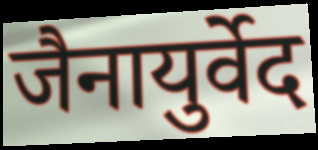
जैनायुर्वेद